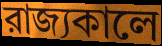
রাজ্যকালে